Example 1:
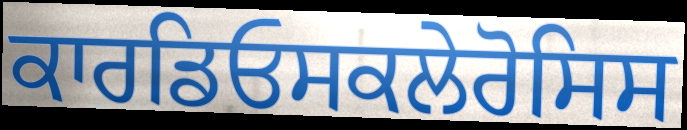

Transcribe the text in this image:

ਕਾਰਡਿਓਸਕਲੇਰੋਸਿਸ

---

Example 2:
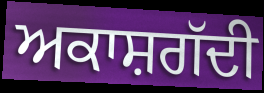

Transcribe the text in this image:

ਅਕਾਸ਼ਗੱਦੀ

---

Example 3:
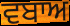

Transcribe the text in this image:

ਵਬਾਅ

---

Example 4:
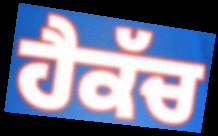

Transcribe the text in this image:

ਹੈਕੱਚ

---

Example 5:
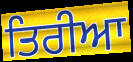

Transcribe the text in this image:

ਤਿਰੀਆ